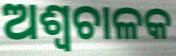
ଅଶ୍ୱଚାଳକ